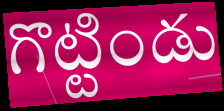
గొట్టిండు